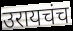
उरायचंच